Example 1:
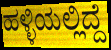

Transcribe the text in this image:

ಹಳ್ಳಿಯಲ್ಲಿದ್ದೆ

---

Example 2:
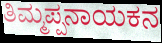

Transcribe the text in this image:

ತಿಮ್ಮಪ್ಪನಾಯಕನ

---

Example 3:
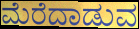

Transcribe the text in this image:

ಮೆರೆದಾಡುವ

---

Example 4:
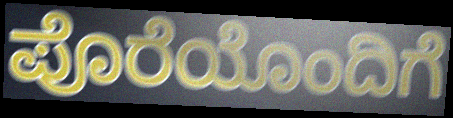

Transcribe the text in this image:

ಪೊರೆಯೊಂದಿಗೆ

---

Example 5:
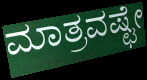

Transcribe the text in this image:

ಮಾತ್ರವಷ್ಟೇ